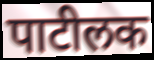
पाटीलक